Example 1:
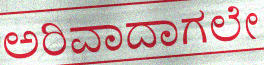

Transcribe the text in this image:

ಅರಿವಾದಾಗಲೇ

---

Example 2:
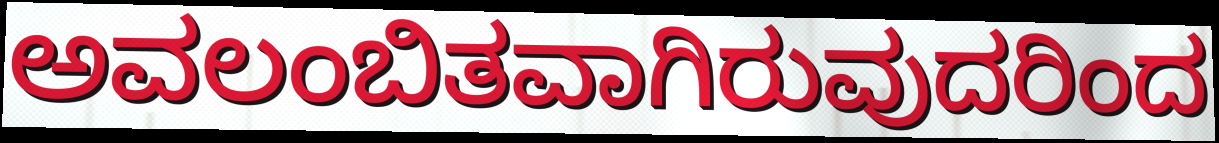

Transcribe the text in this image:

ಅವಲಂಬಿತವಾಗಿರುವುದರಿಂದ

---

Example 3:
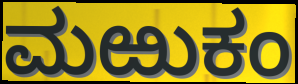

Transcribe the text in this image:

ಮಱುಕಂ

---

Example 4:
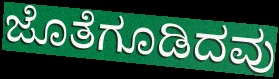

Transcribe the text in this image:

ಜೊತೆಗೂಡಿದವು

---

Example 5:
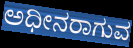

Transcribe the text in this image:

ಅಧೀನರಾಗುವ